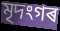
মৃদংগৰ